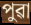
পুৱা